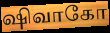
ஷிவாகோ